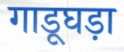
गाडूघड़ा